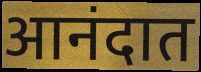
आनंदात